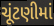
ચૂંટણીમાં